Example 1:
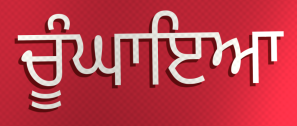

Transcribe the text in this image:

ਚੂੰਘਾਇਆ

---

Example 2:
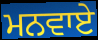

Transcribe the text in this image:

ਮਨਵਾਏ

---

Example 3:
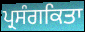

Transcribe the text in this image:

ਪ੍ਰਸੰਗਕਿਤਾ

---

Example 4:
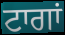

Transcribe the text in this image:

ਟਾਗਾਂ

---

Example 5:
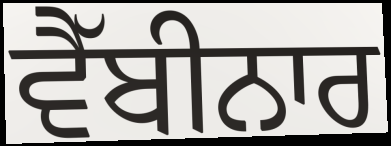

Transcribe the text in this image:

ਵੈੱਬੀਨਾਰ